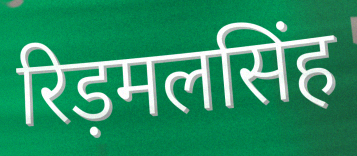
रिड़मलसिंह